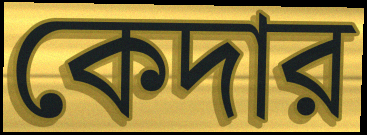
কেদার